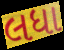
લધા